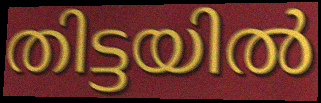
തിട്ടയിൽ